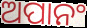
ଅପାନଂ